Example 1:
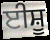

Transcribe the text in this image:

ਈਸ਼ੂ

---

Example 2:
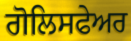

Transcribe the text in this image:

ਗੋਲਿਸਫੇਅਰ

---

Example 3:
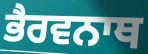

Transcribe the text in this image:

ਭੈਰਵਨਾਥ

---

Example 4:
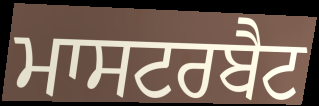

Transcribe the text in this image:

ਮਾਸਟਰਬੈਟ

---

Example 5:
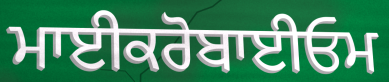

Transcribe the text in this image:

ਮਾਈਕਰੋਬਾਈਓਮ